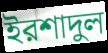
ইরশাদুল